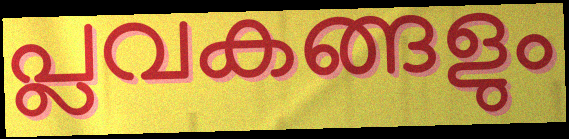
പ്ലവകങ്ങളും